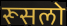
रूसलो